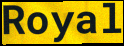
Royal